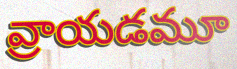
వ్రాయడమూ